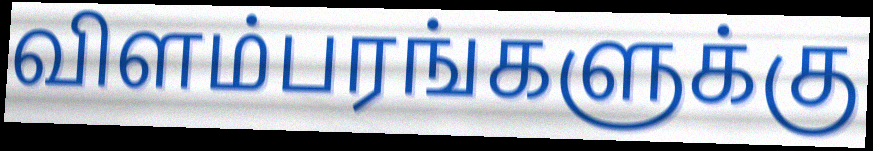
விளம்பரங்களுக்கு